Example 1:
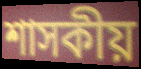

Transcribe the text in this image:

শাসকীয়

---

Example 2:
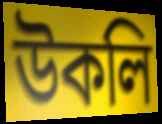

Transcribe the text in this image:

উকলি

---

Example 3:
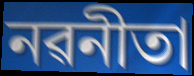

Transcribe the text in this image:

নৱনীতা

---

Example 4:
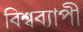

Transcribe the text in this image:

বিশ্বব্যাপী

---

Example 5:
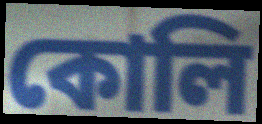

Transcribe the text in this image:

কোলি